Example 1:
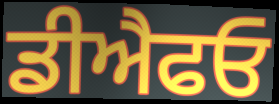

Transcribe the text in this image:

ਡੀਐਫਓ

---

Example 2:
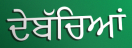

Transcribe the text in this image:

ਦੇਬੱਚਿਆਂ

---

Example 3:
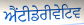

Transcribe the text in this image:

ਐਂਟੀਡੇਰੀਵੇਟਿਵ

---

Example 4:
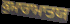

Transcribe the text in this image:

ਕੁਮਾਰਾਮਾਤਯ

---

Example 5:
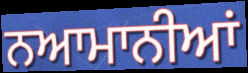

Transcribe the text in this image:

ਨਆਮਾਨੀਆਂ